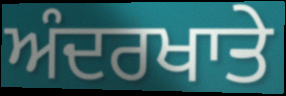
ਅੰਦਰਖਾਤੇ